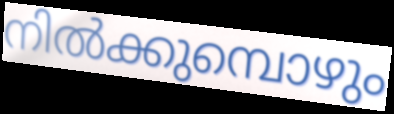
നിൽക്കുമ്പൊഴും